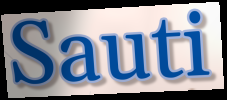
Sauti